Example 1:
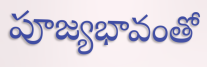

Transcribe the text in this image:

పూజ్యభావంతో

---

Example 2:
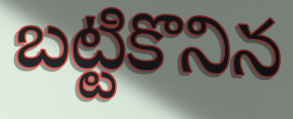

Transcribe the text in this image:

బట్టికొనిన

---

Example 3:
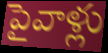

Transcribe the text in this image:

పైవాళ్లు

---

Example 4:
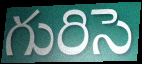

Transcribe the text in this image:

గురిసె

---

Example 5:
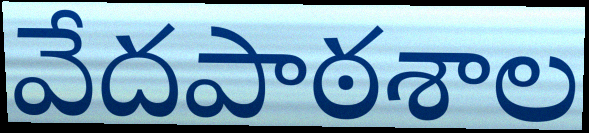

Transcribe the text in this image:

వేదపాఠశాల